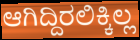
ಆಗಿದ್ದಿರಲಿಕ್ಕಿಲ್ಲ